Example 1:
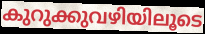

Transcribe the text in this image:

കുറുക്കുവഴിയിലൂടെ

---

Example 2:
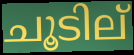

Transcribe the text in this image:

ചൂടില്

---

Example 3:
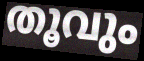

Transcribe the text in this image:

തൂവും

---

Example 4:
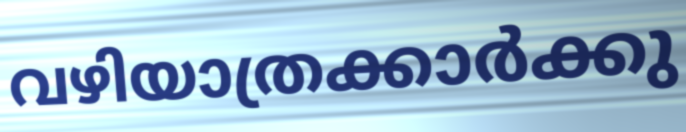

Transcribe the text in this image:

വഴിയാത്രക്കാർക്കു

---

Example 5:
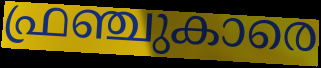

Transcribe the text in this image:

ഫ്രഞ്ചുകാരെ